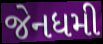
જેનધમી